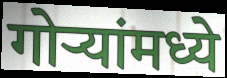
गोऱ्यांमध्ये